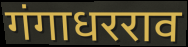
गंगाधरराव